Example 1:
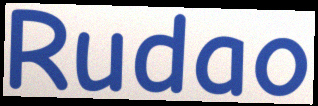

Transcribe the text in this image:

Rudao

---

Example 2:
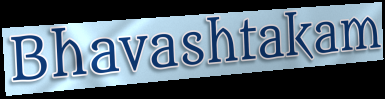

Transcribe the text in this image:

Bhavashtakam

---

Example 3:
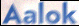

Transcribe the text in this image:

Aalok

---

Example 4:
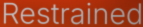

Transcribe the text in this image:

Restrained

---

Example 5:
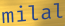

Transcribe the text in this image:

milal